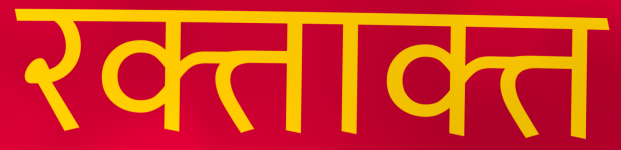
रक्ताक्त